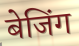
बेजिंग